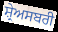
ਸ਼੍ਰੇਅਸਬਰੀ